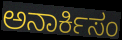
ಅನಾರ್ಕಿಸಂ